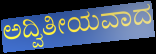
ಅದ್ವಿತೀಯವಾದ